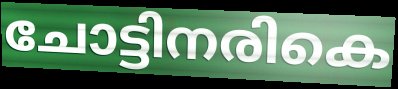
ചോട്ടിനരികെ